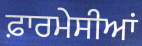
ਫ਼ਾਰਮੇਸੀਆਂ